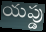
యప్డు